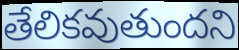
తేలికవుతుందని